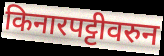
किनारपट्टीवरुन